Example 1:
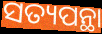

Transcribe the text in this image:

ସତ୍ୟପନ୍ଥା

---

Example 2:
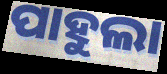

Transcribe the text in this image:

ପାହୁଲା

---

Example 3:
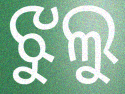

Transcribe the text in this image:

ଝୁଲୁ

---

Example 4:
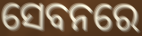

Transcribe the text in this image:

ସେବନରେ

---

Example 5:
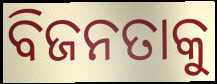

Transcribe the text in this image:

ବିଜନତାକୁ